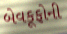
બેવકૂફોની